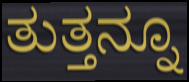
ತುತ್ತನ್ನೂ